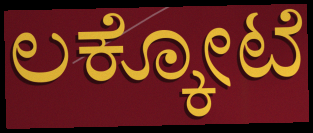
ಲಕ್ಕೋಟೆ